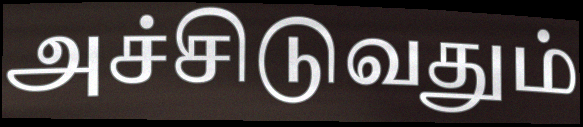
அச்சிடுவதும்